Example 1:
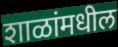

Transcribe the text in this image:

शाळांमधील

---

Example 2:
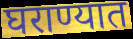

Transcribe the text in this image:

घराण्यात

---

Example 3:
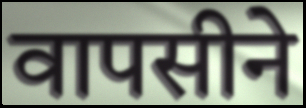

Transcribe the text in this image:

वापसीने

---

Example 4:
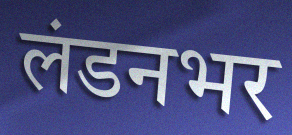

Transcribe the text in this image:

लंडनभर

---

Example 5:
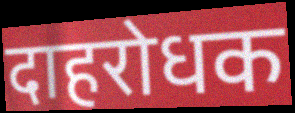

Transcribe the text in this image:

दाहरोधक